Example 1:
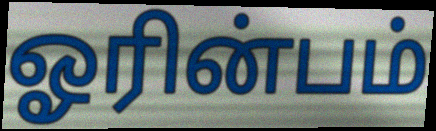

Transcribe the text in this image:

ஓரின்பம்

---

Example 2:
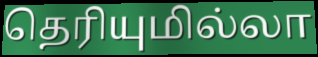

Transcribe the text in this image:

தெரியுமில்லா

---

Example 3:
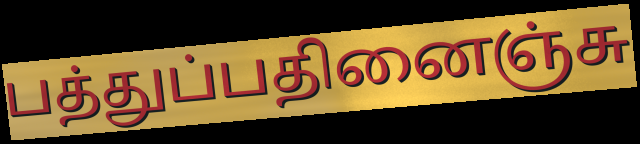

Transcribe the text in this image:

பத்துப்பதினைஞ்சு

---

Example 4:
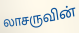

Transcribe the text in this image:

லாசருவின்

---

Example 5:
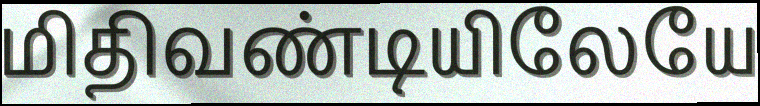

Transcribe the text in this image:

மிதிவண்டியிலேயே